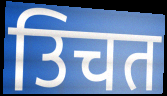
उिचत